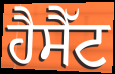
ਹੈਸੈੱਟ